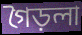
গৈড়লা